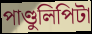
পাণ্ডুলিপিটা